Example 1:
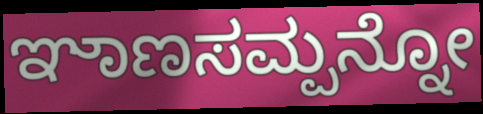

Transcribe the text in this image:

ಞಾಣಸಮ್ಪನ್ನೋ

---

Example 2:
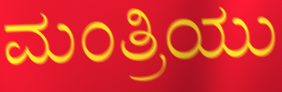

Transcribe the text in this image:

ಮಂತ್ರಿಯು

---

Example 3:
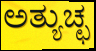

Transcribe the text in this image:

ಅತ್ಯುಚ್ಛ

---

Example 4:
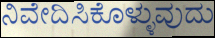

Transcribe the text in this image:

ನಿವೇದಿಸಿಕೊಳ್ಳುವುದು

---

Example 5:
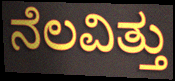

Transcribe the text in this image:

ನೆಲವಿತ್ತು